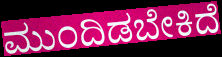
ಮುಂದಿಡಬೇಕಿದೆ